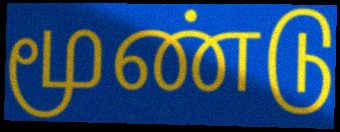
மூண்டு